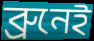
ব্ৰুনেই